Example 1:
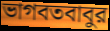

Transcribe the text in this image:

ভাগবতবাবুর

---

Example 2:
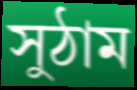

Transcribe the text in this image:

সুঠাম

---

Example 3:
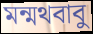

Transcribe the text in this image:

মন্মথবাবু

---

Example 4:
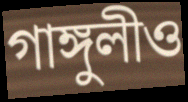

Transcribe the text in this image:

গাঙ্গুলীও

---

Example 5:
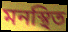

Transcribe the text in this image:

মনস্থিত